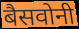
बैसवोनी